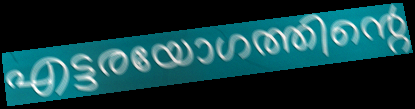
എട്ടരയോഗത്തിന്റെ